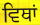
ਵਿਥਾਂ